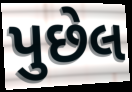
પુછેલ